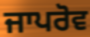
ਜਾਪਰੋਵ